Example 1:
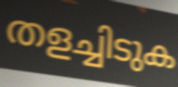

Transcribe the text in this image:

തളച്ചിടുക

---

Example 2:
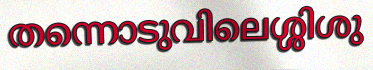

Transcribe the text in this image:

തന്നൊടുവിലെശ്ശിശു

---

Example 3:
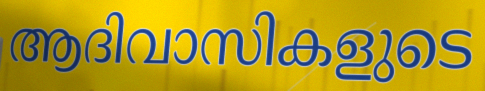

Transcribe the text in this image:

ആദിവാസികളുടെ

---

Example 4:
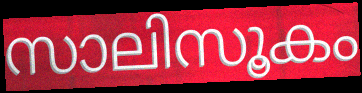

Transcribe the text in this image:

സാലിസൂകം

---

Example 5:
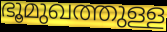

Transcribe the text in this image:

ഭൂമുഖത്തുള്ള